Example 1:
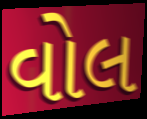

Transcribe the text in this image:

વોલ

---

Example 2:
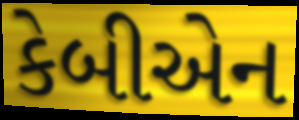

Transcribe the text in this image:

કેબીએન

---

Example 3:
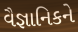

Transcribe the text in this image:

વૈજ્ઞાનિકને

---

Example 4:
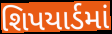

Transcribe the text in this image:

શિપયાર્ડમાં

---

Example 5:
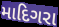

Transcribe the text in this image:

માદિગરા